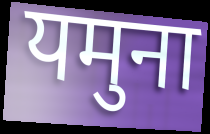
यमुना